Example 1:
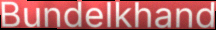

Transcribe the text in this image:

Bundelkhand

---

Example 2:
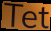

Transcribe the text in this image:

Tet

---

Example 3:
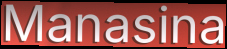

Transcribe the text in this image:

Manasina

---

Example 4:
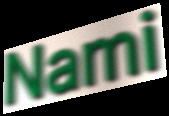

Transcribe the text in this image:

Nami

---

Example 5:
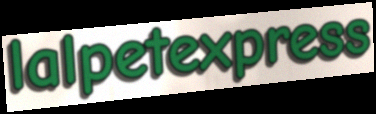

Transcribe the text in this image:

lalpetexpress